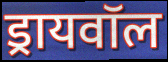
ड्रायवॉल